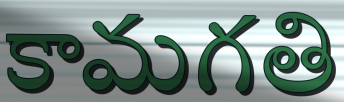
కామగతి